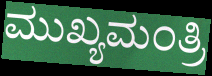
ಮುಖ್ಯಮಂತ್ರಿ